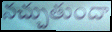
నచ్చుతుందా